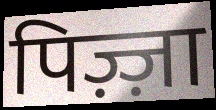
पिज़्ज़ा